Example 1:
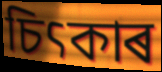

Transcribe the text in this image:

চিৎকাৰ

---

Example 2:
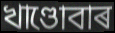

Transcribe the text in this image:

খাণ্ডোবাৰ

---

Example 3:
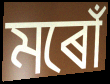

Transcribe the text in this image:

মৰোঁ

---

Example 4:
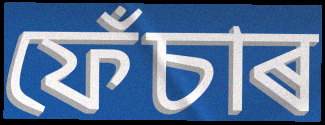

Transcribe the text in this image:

ফেঁচাৰ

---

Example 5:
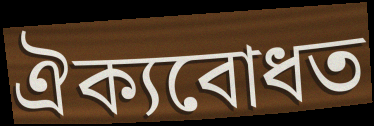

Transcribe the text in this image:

ঐক্যবোধত